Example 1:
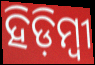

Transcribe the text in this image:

ହିଡ଼ିମ୍ବୀ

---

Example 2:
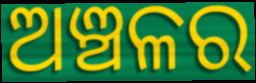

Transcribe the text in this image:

ଅଞ୍ଚଳର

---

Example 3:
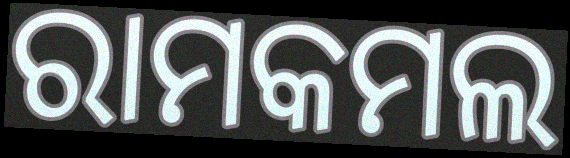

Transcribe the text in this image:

ରାମକମଲ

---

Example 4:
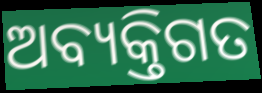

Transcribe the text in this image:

ଅବ୍ୟକ୍ତିଗତ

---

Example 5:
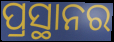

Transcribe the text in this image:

ପ୍ରସ୍ଥାନର